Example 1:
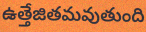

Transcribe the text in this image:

ఉత్తేజితమవుతుంది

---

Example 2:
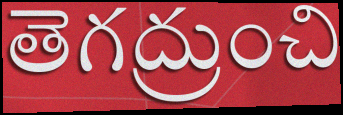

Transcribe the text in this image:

తెగద్రుంచి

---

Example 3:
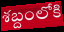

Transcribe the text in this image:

శబ్దంలోకి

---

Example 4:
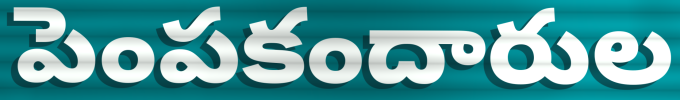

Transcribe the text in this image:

పెంపకందారుల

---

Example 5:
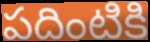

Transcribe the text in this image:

పదింటికి